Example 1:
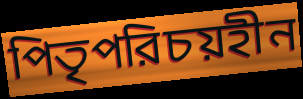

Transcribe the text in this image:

পিতৃপরিচয়হীন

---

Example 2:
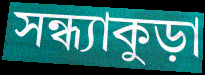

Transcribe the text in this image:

সন্ধ্যাকুড়া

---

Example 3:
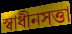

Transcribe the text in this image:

স্বাধীনসত্তা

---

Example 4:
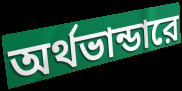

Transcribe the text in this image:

অর্থভান্ডারে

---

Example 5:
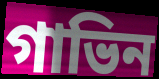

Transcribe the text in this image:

গাভিন